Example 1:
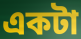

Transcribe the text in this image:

একটা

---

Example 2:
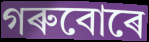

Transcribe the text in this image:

গৰুবোৰে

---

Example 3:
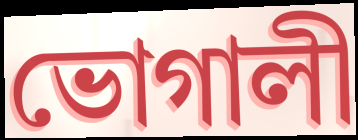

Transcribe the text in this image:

ভোগালী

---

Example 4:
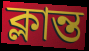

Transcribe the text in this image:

ক্লান্ত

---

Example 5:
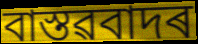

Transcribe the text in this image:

বাস্তৱবাদৰ